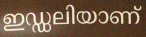
ഇഡ്ഡലിയാണ്